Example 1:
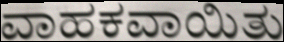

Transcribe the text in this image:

ವಾಹಕವಾಯಿತು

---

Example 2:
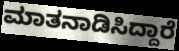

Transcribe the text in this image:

ಮಾತನಾಡಿಸಿದ್ದಾರೆ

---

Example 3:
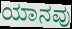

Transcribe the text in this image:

ಯಾನವು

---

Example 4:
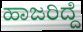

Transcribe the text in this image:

ಹಾಜರಿದ್ದೆ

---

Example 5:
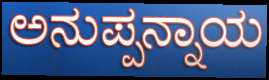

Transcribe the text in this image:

ಅನುಪ್ಪನ್ನಾಯ